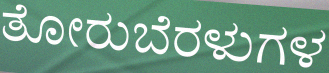
ತೋರುಬೆರಳುಗಳ